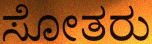
ಸೋತರು